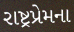
રાષ્ટ્રપ્રેમના